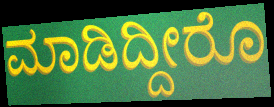
ಮಾಡಿದ್ದೀರೊ